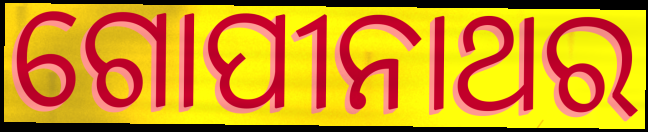
ଗୋପୀନାଥର